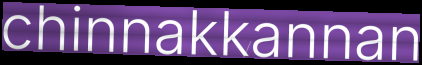
chinnakkannan